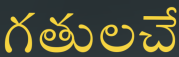
గతులచే